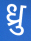
ध्रु